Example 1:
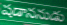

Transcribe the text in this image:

షడాననుడు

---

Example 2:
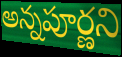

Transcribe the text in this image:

అన్నపూర్ణని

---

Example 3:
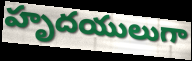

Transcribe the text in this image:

హృదయులుగా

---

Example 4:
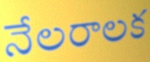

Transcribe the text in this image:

నేలరాలక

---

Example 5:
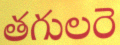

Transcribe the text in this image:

తగులరె